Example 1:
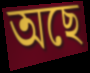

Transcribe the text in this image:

অছে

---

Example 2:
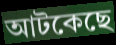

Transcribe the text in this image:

আটকেছে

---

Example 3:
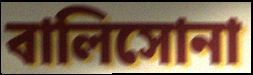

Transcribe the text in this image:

বালিসোনা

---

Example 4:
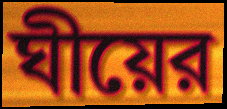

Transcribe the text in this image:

ঘীয়ের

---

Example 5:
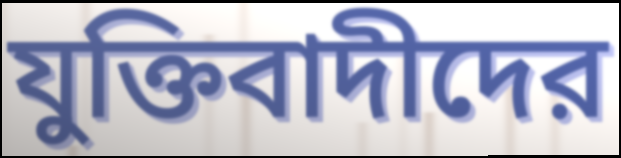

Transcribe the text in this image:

যুক্তিবাদীদের